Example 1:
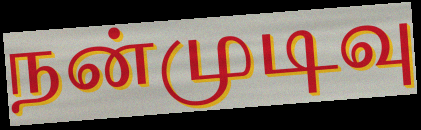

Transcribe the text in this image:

நன்முடிவு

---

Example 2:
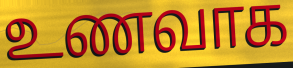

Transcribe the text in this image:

உணவாக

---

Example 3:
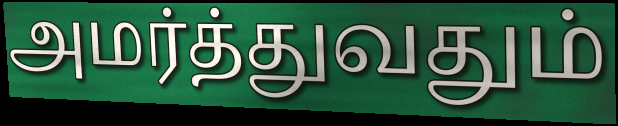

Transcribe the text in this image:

அமர்த்துவதும்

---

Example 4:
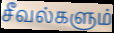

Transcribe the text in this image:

சீவல்களும்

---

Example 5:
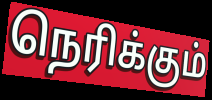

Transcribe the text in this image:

நெரிக்கும்